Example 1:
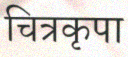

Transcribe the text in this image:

चित्रकृपा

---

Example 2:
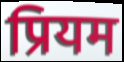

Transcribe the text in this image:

प्रियम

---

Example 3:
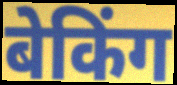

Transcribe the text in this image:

बेकिंग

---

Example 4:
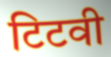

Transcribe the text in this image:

टिटवी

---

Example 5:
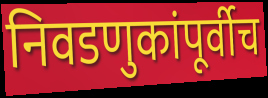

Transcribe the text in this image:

निवडणुकांपूर्वीच